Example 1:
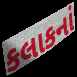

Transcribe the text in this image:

કલાકનાં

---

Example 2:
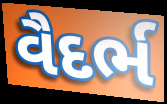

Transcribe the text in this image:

વૈદર્ભ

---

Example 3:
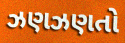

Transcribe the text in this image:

ઝણઝણતો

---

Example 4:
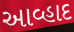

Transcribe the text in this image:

આવ્હાદ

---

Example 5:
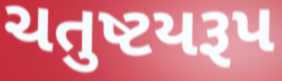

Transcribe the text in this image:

ચતુષ્ટયરૂપ